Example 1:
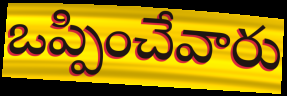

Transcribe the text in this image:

ఒప్పించేవారు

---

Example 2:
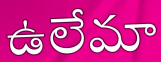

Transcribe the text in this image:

ఉలేమా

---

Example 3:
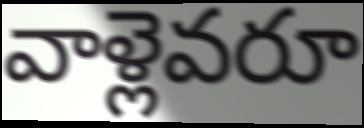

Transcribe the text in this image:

వాళ్లెవరూ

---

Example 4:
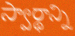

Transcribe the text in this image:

స్వార్థాన్ని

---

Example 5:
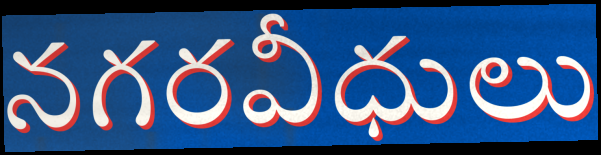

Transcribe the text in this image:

నగరవీధులు